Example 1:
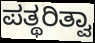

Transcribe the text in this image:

ಪತ್ಥರಿತ್ವಾ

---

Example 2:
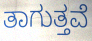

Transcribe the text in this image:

ತಾಗುತ್ತವೆ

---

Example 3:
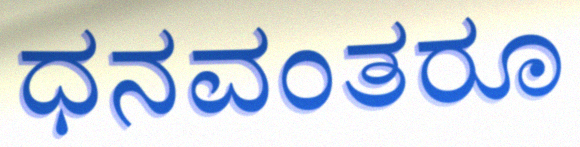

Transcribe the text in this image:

ಧನವಂತರೂ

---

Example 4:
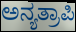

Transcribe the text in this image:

ಅನ್ಯತ್ರಾಪಿ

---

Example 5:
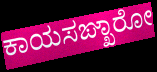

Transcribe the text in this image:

ಕಾಯಸಙ್ಖಾರೋ